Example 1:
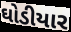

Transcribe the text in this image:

ઘોડીયાર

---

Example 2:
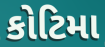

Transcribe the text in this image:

કોટિમા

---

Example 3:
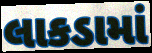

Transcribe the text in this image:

લાકડામાં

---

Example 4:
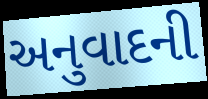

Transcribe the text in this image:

અનુવાદની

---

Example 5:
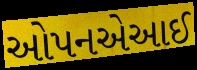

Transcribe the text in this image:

ઓપનએઆઈ